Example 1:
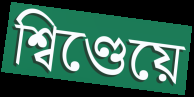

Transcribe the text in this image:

শ্বিণ্ডেয়ে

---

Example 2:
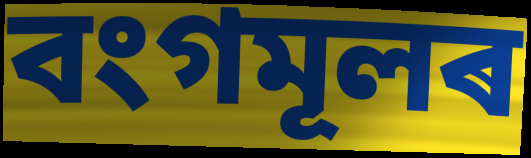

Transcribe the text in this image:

বংগমূলৰ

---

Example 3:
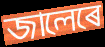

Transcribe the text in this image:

জালেৰে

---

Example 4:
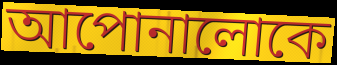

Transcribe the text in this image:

আপোনালোকে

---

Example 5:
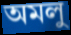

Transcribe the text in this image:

অমলু